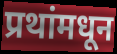
प्रथांमधून